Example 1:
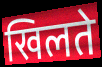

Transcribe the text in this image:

खिलते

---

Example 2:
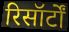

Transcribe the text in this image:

रिसॉर्टों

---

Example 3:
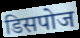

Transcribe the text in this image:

डिसपोज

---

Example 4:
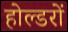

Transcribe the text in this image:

होल्डरों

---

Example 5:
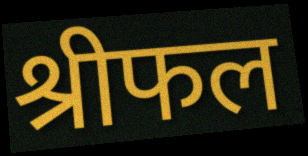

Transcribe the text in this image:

श्रीफल